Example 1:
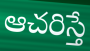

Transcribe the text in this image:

ఆచరిస్తే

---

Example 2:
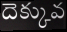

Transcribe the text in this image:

దెక్కువ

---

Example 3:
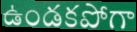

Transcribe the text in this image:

ఉండకపోగా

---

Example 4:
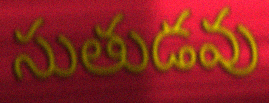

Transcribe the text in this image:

సుతుడవు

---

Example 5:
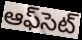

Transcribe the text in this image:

ఆఫ్‌సెట్